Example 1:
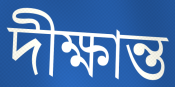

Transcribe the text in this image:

দীক্ষান্ত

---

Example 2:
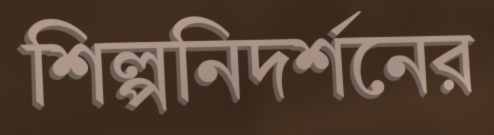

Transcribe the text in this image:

শিল্পনিদর্শনের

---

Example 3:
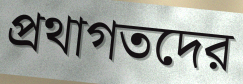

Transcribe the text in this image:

প্রথাগতদের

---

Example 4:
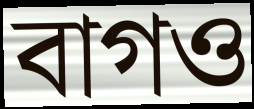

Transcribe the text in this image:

বাগও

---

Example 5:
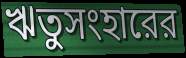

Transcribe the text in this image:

ঋতুসংহারের